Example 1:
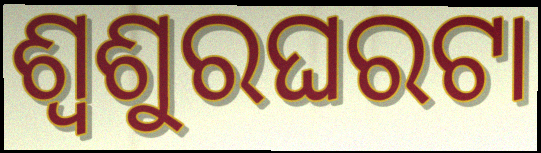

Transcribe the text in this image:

ଶ୍ୱଶୁରଘରଟା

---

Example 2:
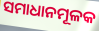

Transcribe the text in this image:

ସମାଧାନମୂଳକ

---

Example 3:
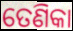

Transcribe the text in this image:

ତେଣିକା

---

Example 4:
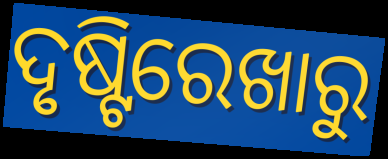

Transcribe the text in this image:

ଦୃଷ୍ଟିରେଖାରୁ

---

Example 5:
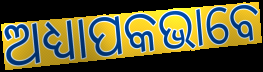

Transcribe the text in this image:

ଅଧ୍ୟାପକଭାବେ